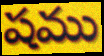
షము